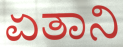
ಏತಾನಿ